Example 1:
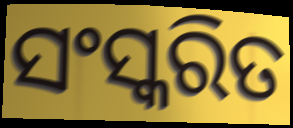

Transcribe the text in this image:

ସଂସ୍କରିତ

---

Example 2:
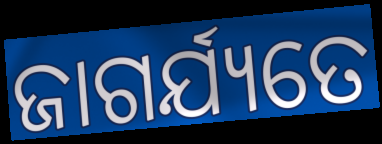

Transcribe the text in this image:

ଜାଗର୍ଯ୍ୟତେ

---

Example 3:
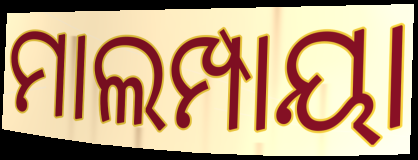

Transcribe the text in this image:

ମାଲମ୍ପାୟା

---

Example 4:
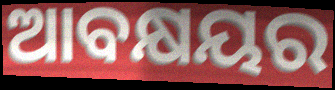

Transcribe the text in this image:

ଆବକ୍ଷୟର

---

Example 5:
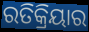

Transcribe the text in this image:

ରତିକ୍ରିୟାର